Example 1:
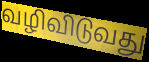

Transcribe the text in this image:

வழிவிடுவது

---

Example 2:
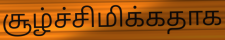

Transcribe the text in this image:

சூழ்ச்சிமிக்கதாக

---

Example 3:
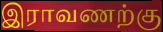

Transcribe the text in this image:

இராவணற்கு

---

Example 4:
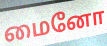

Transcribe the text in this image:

மைனோ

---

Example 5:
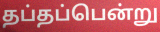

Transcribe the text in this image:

தப்தப்பென்று